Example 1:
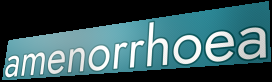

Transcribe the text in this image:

amenorrhoea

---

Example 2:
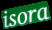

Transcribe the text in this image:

isora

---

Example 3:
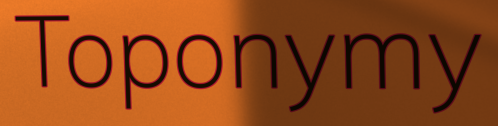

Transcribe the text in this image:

Toponymy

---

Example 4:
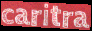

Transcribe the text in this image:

caritra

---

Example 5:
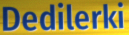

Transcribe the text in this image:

Dedilerki